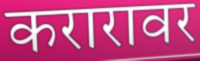
करारावर